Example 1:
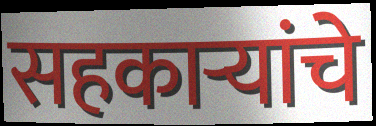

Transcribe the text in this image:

सहकार्‍यांचे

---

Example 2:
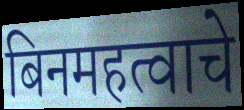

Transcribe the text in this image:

बिनमहत्वाचे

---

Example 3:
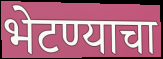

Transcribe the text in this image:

भेटण्याचा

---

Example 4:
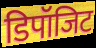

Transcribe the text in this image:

डिपॉजिट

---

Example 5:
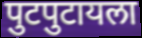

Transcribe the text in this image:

पुटपुटायला